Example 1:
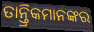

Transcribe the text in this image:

ତାନ୍ତ୍ରିକମାନଙ୍କର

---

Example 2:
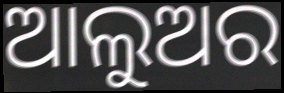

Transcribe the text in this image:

ଆଲୁଅର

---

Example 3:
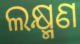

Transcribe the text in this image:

ଲକ୍ଷ୍ମଣ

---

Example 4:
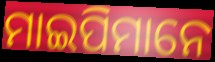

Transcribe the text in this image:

ମାଇପିମାନେ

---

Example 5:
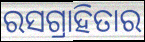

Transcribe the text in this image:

ରସଗ୍ରାହିତାର